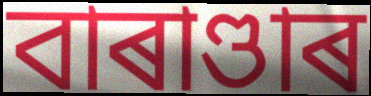
বাৰাণ্ডাৰ